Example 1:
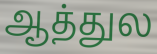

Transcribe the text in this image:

ஆத்துல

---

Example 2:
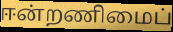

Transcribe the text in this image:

ஈன்றணிமைப்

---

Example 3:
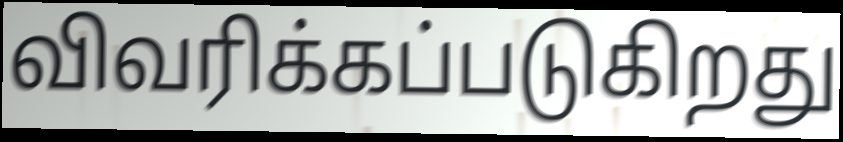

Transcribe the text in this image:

விவரிக்கப்படுகிறது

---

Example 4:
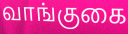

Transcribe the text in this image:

வாங்குகை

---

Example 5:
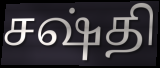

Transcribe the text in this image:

சஷ்தி